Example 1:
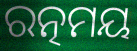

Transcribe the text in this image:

ରତ୍ନମୟ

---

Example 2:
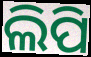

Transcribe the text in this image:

ଲିପି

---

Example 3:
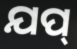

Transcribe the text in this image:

ଯପ୍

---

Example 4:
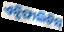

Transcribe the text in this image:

ଏନ୍ସିଫାଲିଟିସ୍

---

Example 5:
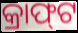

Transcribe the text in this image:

କ୍ରାଫ୍‌ଟ